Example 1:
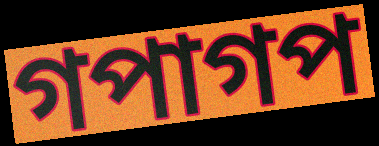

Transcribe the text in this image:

গপাগপ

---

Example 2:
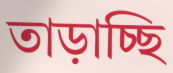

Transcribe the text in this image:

তাড়াচ্ছি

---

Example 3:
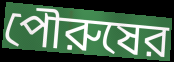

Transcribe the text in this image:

পৌরুষের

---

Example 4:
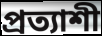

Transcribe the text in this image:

প্রত্যাশী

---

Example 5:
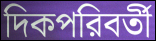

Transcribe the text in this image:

দিকপরিবর্তী